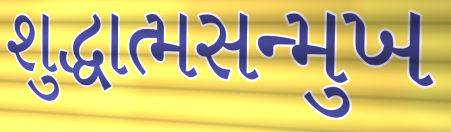
શુદ્ધાત્મસન્મુખ